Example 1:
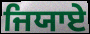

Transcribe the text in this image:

ਜਿਯਾਏ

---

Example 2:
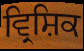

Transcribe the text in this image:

ਵ੍ਰਿਸ਼ਿਕ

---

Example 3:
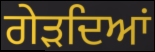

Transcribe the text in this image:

ਗੇੜਦਿਆਂ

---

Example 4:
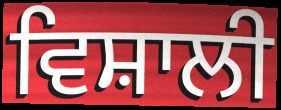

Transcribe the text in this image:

ਵਿਸ਼ਾਲੀ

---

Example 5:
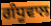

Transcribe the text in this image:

ਗੰਧੂਵਾਲ